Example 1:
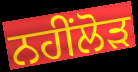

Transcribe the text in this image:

ਨਹੀਂਲੋੜ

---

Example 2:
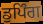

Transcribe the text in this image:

ਡੁਪਿੰਗ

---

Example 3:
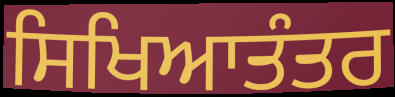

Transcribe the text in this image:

ਸਿਖਿਆਤੰਤਰ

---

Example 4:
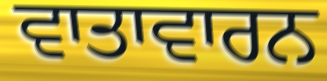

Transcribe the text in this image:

ਵਾਤਾਵਾਰਨ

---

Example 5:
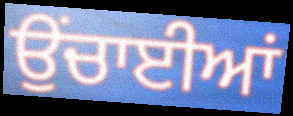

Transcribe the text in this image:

ਉਂਚਾਈਆਂ